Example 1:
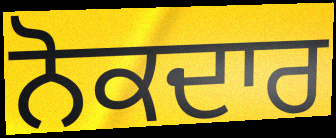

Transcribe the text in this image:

ਨੋਕਦਾਰ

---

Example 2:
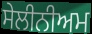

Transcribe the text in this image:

ਸੇਲੀਨੀਅਮ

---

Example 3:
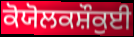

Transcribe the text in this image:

ਕੋਯੋਲਕਸ਼ੌਕੁਈ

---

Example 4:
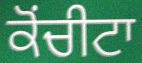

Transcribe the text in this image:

ਕੋਂਚੀਟਾ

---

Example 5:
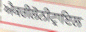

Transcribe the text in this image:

ਐਕਰੀਲੋਨੀਟ੍ਰਾਇਲ